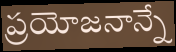
ప్రయోజనాన్నే